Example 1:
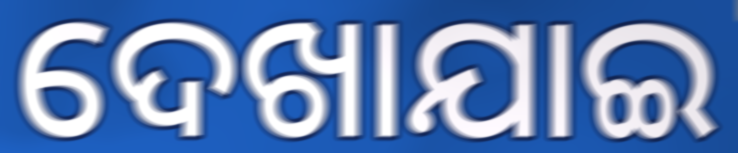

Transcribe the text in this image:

ଦେଖାଯାଇ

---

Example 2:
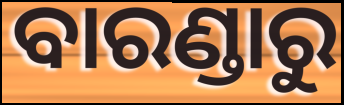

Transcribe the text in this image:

ବାରଣ୍ଡାରୁ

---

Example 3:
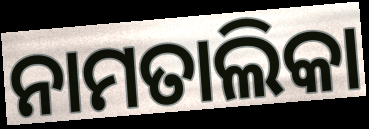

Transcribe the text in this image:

ନାମତାଲିକା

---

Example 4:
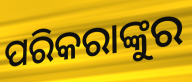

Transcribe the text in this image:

ପରିକରାଙ୍କୁର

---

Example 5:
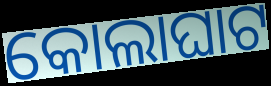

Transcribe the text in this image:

କୋଲାଘାଟ